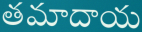
తమాదాయ